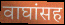
वाघांसह